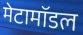
मेटामॉडल